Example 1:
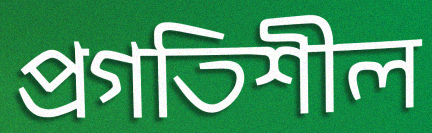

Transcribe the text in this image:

প্রগতিশীল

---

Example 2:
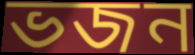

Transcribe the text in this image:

ভজন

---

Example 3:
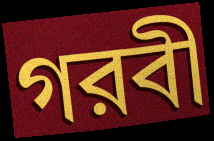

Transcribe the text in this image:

গরবী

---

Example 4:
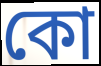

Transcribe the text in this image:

কো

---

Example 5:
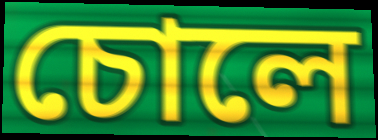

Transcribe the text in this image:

চোলে